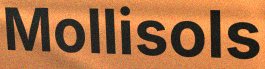
Mollisols